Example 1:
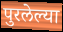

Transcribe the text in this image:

पुरलेल्या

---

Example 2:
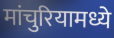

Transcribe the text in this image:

मांचुरियामध्ये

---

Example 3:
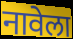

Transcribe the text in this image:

नावेला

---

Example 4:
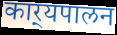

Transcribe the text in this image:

कार्यपालन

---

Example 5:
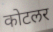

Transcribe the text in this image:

कोटलर